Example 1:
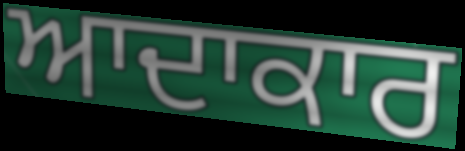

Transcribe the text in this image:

ਆਦਾਕਾਰ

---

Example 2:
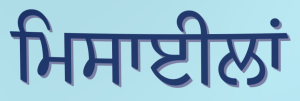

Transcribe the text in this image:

ਮਿਸਾਈਲਾਂ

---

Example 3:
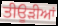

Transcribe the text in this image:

ਤੀਊੜੀਆਂ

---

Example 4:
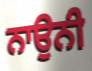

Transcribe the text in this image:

ਨਾਉਨੀ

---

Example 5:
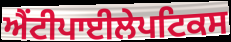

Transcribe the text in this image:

ਐਂਟੀਪਾਈਲੇਪਟਿਕਸ